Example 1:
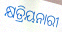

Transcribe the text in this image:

କ୍ଷତ୍ରିୟନାରୀ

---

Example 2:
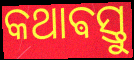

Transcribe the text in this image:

କଥାଵସ୍ତୁ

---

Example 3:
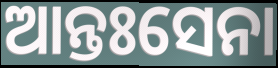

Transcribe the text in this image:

ଆନ୍ତଃସେନା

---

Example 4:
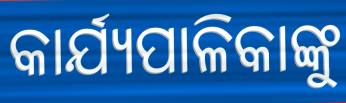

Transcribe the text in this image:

କାର୍ଯ୍ୟପାଳିକାଙ୍କୁ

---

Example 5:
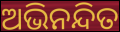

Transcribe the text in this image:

ଅଭିନନ୍ଦିତ